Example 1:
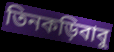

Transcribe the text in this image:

তিনকড়িবাবু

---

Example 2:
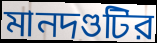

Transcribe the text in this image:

মানদণ্ডটির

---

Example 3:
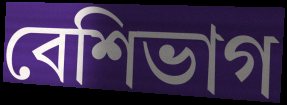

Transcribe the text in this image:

বেশিভাগ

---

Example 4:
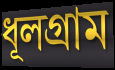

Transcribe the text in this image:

ধূলগ্রাম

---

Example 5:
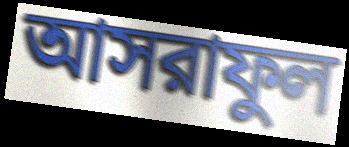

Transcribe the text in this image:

আসরাফুল